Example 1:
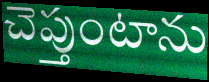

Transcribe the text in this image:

చెప్తుంటాను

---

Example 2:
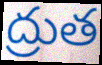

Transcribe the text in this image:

ద్రుత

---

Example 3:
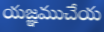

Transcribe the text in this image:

యజ్ఞముచేయ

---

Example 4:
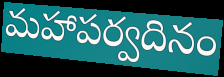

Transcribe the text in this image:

మహాపర్వదినం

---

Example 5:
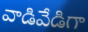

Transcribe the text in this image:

వాడివేడిగా